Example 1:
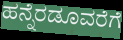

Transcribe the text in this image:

ಹನ್ನೆರಡೂವರೆಗೆ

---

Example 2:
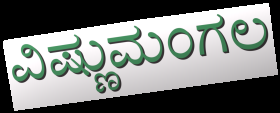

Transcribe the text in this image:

ವಿಷ್ಣುಮಂಗಲ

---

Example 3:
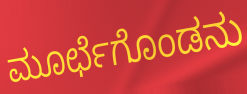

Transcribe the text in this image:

ಮೂರ್ಛೆಗೊಂಡನು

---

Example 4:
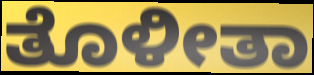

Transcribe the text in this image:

ತೊಳೀತಾ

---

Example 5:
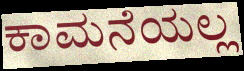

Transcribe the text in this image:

ಕಾಮನೆಯಲ್ಲ